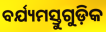
ବର୍ଯ୍ୟମସ୍ତୁଗୁଡ଼ିକ